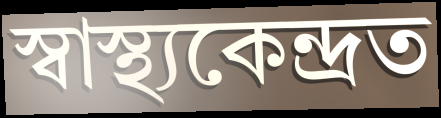
স্বাস্থ্যকেন্দ্ৰত